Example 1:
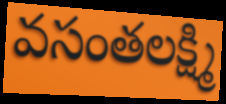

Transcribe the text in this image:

వసంతలక్ష్మి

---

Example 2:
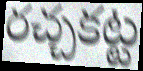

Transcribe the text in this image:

రచ్చకట్ట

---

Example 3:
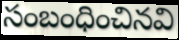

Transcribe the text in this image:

సంబంధించినవి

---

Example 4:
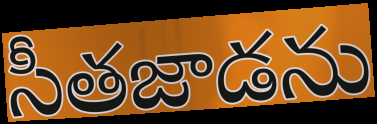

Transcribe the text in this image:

సీతజాడను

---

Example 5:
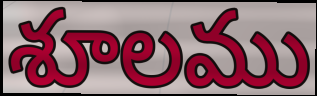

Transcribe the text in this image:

శూలము